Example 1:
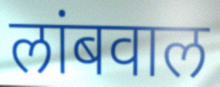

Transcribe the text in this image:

लांबवाल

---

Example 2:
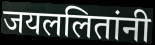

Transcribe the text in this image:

जयललितांनी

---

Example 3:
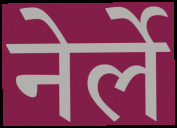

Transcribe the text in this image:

नेर्ले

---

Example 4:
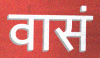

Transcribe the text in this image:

वासं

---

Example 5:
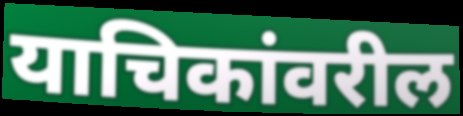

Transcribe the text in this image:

याचिकांवरील